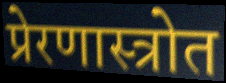
प्रेरणास्त्रोत